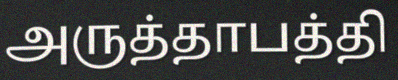
அருத்தாபத்தி